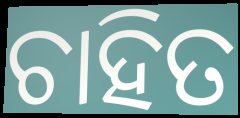
ଚାହିତ